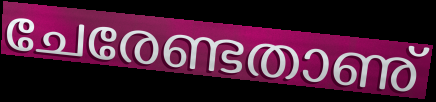
ചേരേണ്ടതാണു്